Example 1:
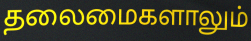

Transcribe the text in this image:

தலைமைகளாலும்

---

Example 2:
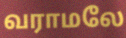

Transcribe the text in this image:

வராமலே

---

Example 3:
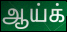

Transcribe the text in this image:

ஆய்க்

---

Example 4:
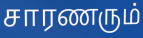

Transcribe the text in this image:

சாரணரும்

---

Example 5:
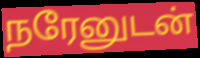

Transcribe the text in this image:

நரேனுடன்